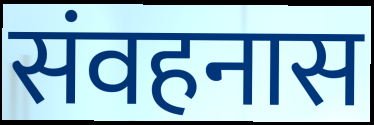
संवहनास